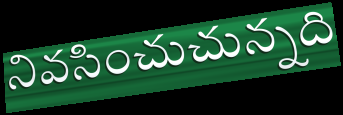
నివసించుచున్నది